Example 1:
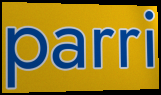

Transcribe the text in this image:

parri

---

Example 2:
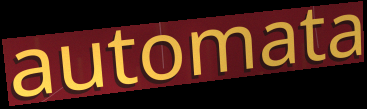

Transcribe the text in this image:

automata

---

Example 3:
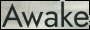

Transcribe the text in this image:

Awake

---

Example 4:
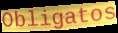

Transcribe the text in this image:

Obligatos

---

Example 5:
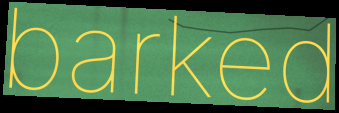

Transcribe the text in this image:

barked